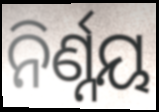
ନିର୍ଣ୍ନୟ